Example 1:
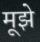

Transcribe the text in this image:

मूझे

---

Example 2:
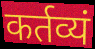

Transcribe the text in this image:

कर्तव्यं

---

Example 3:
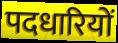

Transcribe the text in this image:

पदधारियों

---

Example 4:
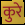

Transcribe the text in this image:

कुरे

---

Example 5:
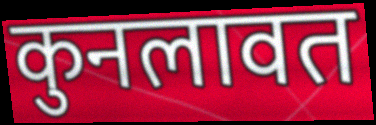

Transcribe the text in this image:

कुनलावत